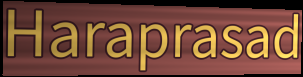
Haraprasad